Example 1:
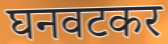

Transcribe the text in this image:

घनवटकर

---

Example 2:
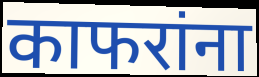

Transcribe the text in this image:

काफरांना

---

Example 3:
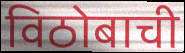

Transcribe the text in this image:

विठोबाची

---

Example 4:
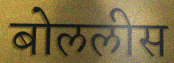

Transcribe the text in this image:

बोललीस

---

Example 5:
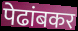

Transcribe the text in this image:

पेढांबकर